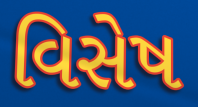
વિસેષ